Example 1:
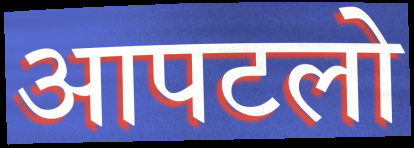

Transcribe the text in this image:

आपटलो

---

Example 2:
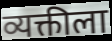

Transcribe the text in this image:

व्यक्तीला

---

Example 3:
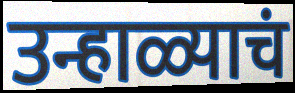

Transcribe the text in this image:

उन्हाळ्याचं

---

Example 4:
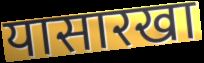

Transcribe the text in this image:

यासारखा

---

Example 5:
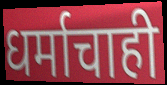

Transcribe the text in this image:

धर्माचाही